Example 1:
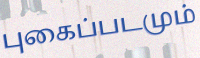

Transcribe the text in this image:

புகைப்படமும்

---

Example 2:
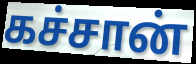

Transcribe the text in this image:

கச்சான்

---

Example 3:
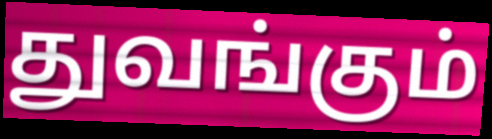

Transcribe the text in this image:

துவங்கும்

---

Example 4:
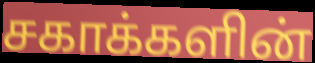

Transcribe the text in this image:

சகாக்களின்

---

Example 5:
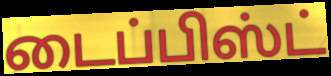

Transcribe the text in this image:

டைப்பிஸ்ட்